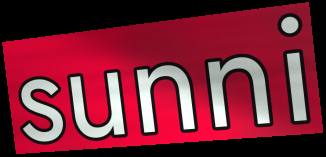
sunni